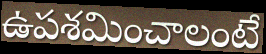
ఉపశమించాలంటే